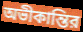
অভীকান্তির